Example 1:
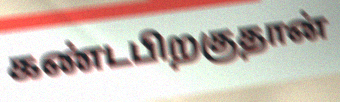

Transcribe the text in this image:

கண்டபிறகுதான்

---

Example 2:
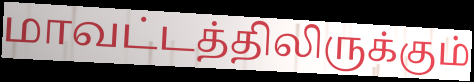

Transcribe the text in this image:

மாவட்டத்திலிருக்கும்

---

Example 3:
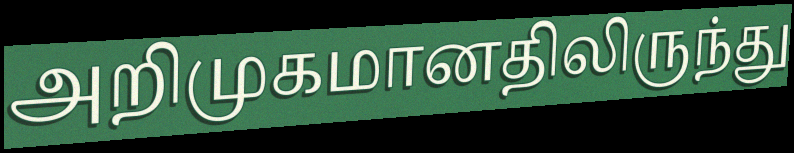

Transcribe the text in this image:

அறிமுகமானதிலிருந்து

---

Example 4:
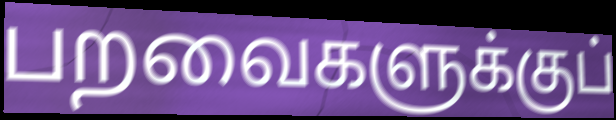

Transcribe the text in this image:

பறவைகளுக்குப்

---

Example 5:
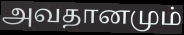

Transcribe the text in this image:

அவதானமும்